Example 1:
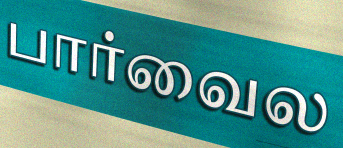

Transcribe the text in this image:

பார்வைல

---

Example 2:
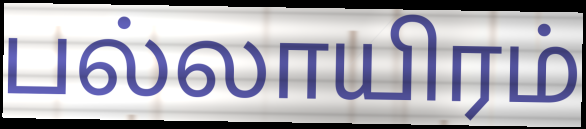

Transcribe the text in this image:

பல்லாயிரம்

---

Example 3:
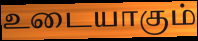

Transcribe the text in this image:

உடையாகும்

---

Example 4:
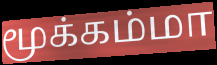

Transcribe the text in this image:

மூக்கம்மா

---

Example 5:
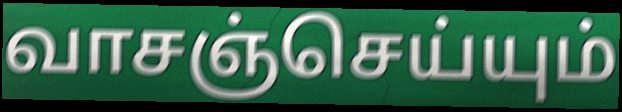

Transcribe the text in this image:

வாசஞ்செய்யும்